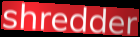
shredder